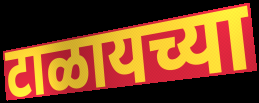
टाळायच्या